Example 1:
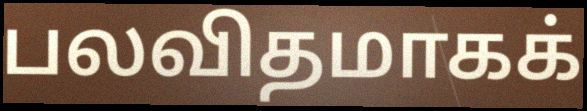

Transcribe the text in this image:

பலவிதமாகக்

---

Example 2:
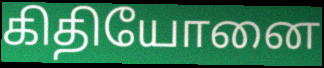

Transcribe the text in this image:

கிதியோனை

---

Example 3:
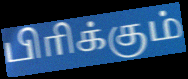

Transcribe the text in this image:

பிரிக்கும்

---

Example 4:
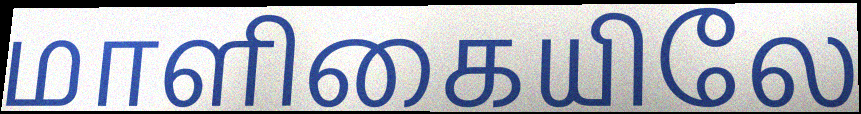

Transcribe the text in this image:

மாளிகையிலே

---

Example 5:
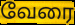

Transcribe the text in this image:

வேரை